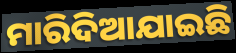
ମାରିଦିଆଯାଇଛି